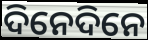
ଦିନେଦିନେ